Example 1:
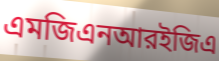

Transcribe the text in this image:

এমজিএনআরইজিএ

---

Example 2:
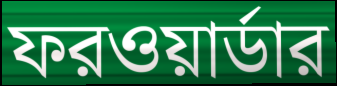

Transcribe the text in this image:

ফরওয়ার্ডার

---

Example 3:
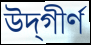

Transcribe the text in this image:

উদ্‌গীর্ণ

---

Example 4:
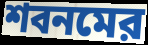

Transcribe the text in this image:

শবনমের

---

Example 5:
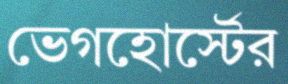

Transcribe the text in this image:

ভেগহোর্স্টের